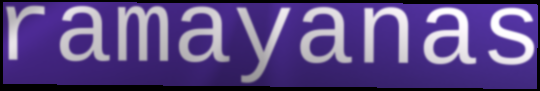
ramayanas